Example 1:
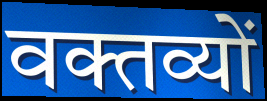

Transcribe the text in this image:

वक्‍तव्‍यों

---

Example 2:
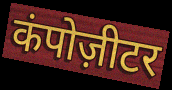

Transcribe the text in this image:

कंपोज़ीटर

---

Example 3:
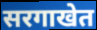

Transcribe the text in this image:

सरगाखेत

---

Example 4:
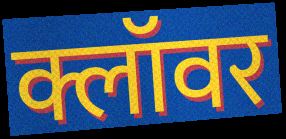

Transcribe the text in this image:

क्लॉवर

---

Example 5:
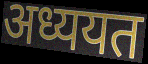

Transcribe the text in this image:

अध्ययत